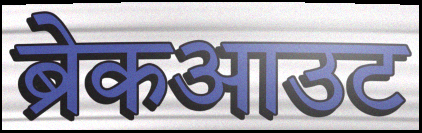
ब्रेकआउट